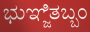
ಭುಞ್ಜಿತಬ್ಬಂ